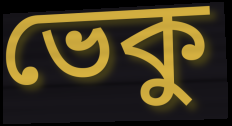
ভেকু